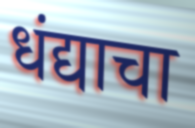
धंद्याचा